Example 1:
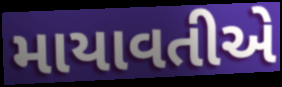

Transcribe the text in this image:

માયાવતીએ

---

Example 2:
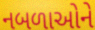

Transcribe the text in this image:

નબળાઓને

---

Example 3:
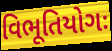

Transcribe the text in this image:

વિભૂતિયોગઃ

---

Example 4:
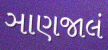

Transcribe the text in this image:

ઞાણજાલં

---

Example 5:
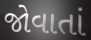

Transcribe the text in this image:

જોવાતાં